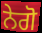
ਨੇਗੋ